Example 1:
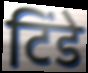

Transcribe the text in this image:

टिंडे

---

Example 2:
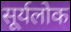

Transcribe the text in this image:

सूर्यलोक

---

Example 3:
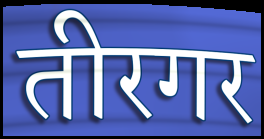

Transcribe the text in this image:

तीरगर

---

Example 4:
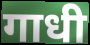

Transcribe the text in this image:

गाधी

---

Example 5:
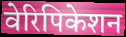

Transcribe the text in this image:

वेरिपिकेशन